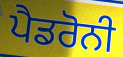
ਪੈਡਰੋਨੀ